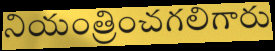
నియంత్రించగలిగారు